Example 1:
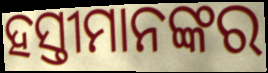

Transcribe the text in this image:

ହସ୍ତୀମାନଙ୍କର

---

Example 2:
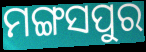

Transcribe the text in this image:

ମଙ୍ଗସପୁର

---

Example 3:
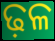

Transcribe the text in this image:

ଢ଼ଳ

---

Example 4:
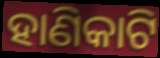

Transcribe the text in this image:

ହାଣିକାଟି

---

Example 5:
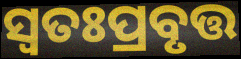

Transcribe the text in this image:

ସ୍ବତଃପ୍ରବୃତ୍ତ